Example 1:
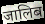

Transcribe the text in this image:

जालिब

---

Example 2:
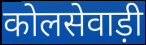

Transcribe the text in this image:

कोलसेवाड़ी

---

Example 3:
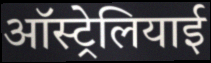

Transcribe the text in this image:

ऑस्‍ट्रेलियाई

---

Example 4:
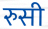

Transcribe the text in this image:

रुसी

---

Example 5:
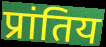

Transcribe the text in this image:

प्रांतिय